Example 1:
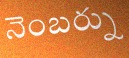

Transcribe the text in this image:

నెంబర్ను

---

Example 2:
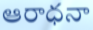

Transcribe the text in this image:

ఆరాధనా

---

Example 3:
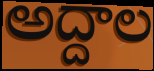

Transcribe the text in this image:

అద్దాల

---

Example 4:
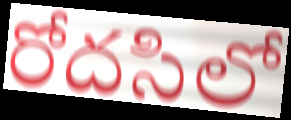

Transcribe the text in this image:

రోదసిలో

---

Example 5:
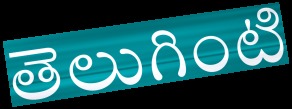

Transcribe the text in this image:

తెలుగింటి